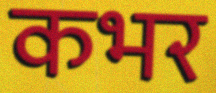
कभर